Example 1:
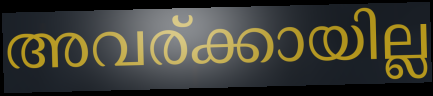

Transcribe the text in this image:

അവര്ക്കായില്ല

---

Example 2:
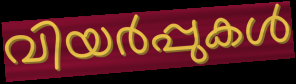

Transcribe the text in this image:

വിയർപ്പുകൾ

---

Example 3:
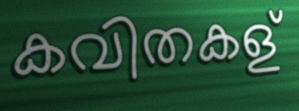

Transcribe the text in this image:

കവിതകള്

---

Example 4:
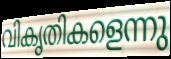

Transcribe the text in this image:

വികൃതികളെന്നു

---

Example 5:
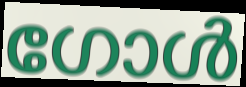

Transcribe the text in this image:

ഗോൾ